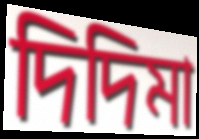
দিদিমা